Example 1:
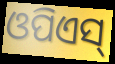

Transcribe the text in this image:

ଓପିଏସ୍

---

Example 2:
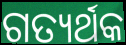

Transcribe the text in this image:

ଗତ୍ୟର୍ଥକ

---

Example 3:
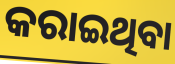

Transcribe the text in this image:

କରାଇଥିବା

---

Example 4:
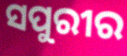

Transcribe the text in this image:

ସପୁରୀର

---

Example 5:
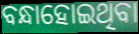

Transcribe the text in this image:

ବନ୍ଧାହୋଇଥିବା